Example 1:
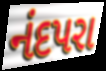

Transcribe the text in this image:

નંદપરા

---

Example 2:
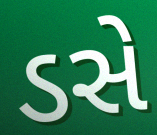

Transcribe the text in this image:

ડસે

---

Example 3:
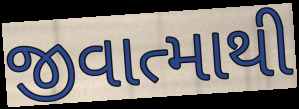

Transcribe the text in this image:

જીવાત્માથી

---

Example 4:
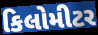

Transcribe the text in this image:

કિલોમીટર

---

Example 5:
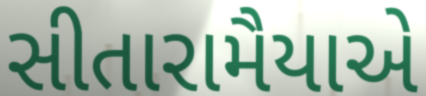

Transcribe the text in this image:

સીતારામૈયાએ